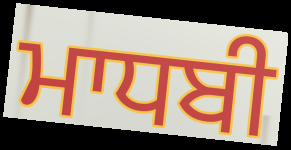
ਮਾਧਬੀ